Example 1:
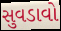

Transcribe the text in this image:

સુવડાવો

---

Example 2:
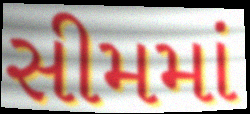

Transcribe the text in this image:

સીમમાં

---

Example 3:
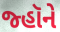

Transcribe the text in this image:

જ્હૉને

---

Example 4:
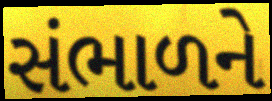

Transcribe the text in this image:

સંભાળને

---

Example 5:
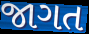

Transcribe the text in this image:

જાગત